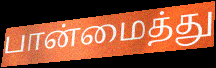
பான்மைத்து